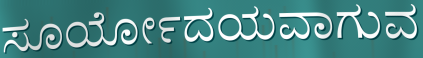
ಸೂರ್ಯೋದಯವಾಗುವ